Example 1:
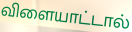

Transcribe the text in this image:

விளையாட்டால்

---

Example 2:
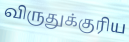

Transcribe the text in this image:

விருதுக்குரிய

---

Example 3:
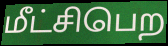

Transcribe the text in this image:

மீட்சிபெற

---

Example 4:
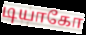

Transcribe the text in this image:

டியாகோ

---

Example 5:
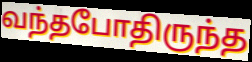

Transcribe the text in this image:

வந்தபோதிருந்த